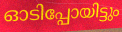
ഓടിപ്പോയിട്ടും